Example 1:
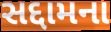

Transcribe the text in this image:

સદ્દામના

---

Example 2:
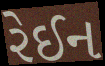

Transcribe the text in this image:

રેઈન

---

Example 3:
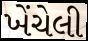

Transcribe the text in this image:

ખેંચેલી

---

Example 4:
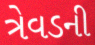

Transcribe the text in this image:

ત્રેવડની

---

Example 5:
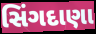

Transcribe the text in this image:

સિંગદાણા